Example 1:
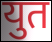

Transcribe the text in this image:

युत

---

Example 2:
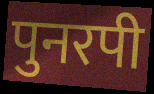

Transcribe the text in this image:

पुनरपी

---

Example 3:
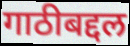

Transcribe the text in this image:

गाठीबद्दल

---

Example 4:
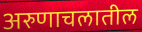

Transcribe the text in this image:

अरुणाचलातील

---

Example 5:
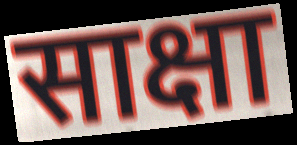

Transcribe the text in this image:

साक्षा